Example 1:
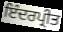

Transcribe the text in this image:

ਇੰਦਰਪ੍ਰੀਤ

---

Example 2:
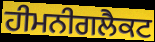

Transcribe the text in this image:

ਹੀਮਨੀਗਲੈਕਟ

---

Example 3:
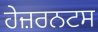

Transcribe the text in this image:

ਹੇਜ਼ਰਨਟਸ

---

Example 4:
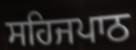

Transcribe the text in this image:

ਸਹਿਜਪਾਠ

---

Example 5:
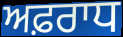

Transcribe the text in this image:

ਅਫ਼ਰਾਧ